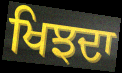
ਖਿਝਦਾ